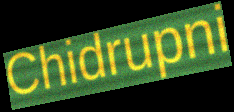
Chidrupni